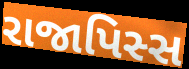
રાજાપિસ્સ